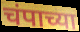
चंपाच्या